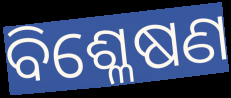
ବିଶ୍ଳେଷଣ